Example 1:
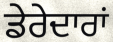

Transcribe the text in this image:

ਡੇਰੇਦਾਰਾਂ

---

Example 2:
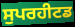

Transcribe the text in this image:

ਸੁਪਰਹੀਟਡ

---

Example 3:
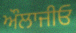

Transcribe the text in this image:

ਔਲਾਜੀਓ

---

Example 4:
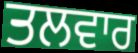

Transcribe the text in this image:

ਤਲਵਾਰ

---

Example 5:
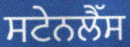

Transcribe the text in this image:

ਸਟੇਨਲੈੱਸ